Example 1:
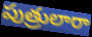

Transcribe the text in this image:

పుత్రులారా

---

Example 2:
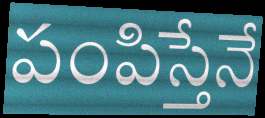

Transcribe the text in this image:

పంపిస్తేనే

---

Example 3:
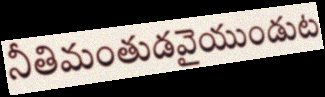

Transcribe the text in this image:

నీతిమంతుడవైయుండుట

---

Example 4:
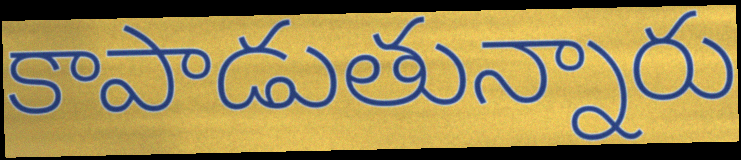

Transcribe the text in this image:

కాపాడుతున్నారు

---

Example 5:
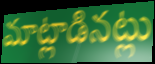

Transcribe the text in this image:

మాట్లాడినట్లు